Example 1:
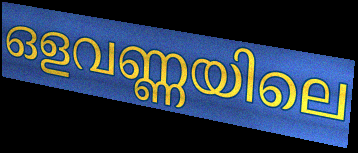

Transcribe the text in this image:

ഒളവണ്ണയിലെ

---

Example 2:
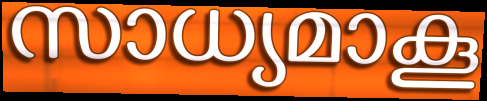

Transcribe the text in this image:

സാധ്യമാകൂ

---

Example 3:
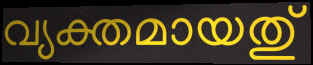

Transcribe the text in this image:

വ്യക്തമായതു്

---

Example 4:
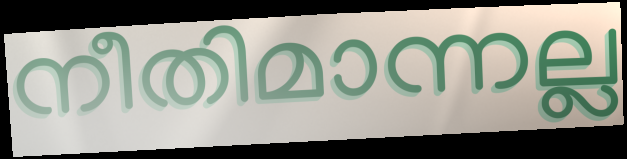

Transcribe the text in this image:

നീതിമാന്നല്ല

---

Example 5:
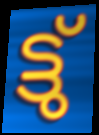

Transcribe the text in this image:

ട്ടു്